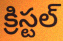
క్రిస్టల్